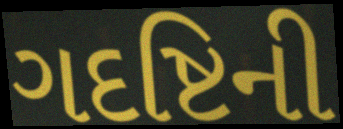
ગદષ્ટિની